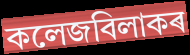
কলেজবিলাকৰ